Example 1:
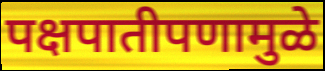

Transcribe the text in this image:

पक्षपातीपणामुळे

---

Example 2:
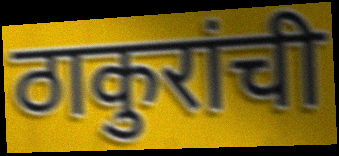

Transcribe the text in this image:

ठाकुरांची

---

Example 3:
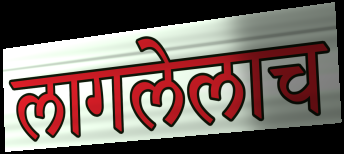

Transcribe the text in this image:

लागलेलाच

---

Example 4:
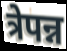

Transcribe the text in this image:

त्रेपन्न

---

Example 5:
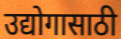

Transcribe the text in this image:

उद्योगासाठी